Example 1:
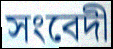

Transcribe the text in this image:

সংবেদী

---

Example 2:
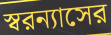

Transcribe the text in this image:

স্বরন্যাসের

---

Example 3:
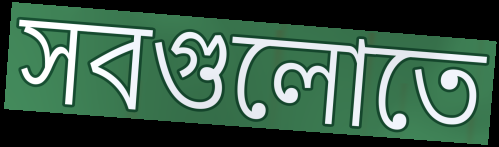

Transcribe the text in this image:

সবগুলোতে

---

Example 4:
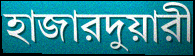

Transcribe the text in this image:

হাজারদুয়ারী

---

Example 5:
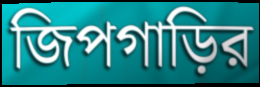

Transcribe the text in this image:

জিপগাড়ির